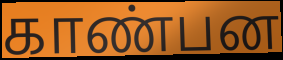
காண்பன